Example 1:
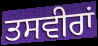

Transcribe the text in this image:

ਤਸਵੀਰਾਂ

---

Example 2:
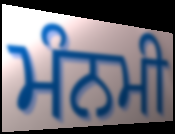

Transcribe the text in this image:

ਮੰਨਮੀ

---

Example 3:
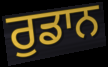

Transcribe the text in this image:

ਰੁਡਾਨ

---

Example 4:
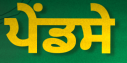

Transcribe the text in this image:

ਪੇਂਡਸੇ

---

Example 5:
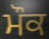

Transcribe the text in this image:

ਮੌਕ